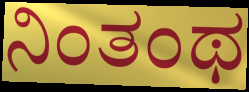
ನಿಂತಂಥ